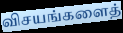
விசயங்களைத்